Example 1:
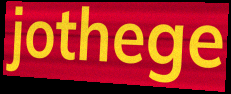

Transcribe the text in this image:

jothege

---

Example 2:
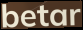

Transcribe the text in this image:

betar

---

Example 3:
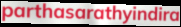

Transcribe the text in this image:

parthasarathyindira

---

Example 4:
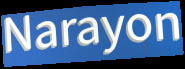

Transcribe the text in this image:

Narayon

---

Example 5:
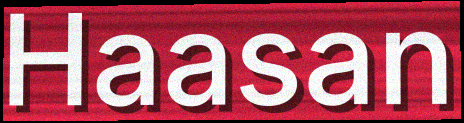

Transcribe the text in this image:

Haasan